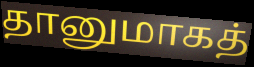
தானுமாகத்